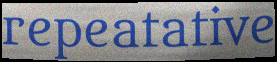
repeatative